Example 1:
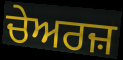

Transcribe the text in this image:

ਚੇਅਰਜ਼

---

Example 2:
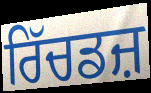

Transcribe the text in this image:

ਰਿੱਚਡਜ਼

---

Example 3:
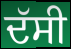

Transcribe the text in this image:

ਦੱਸੀ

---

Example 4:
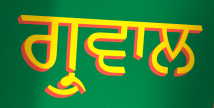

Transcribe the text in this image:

ਗ੍ਰੁਵਾਲ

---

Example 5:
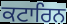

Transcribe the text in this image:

ਕਟਾਰਿਨ